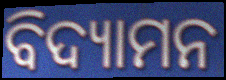
ବିଦ୍ୟାମନ